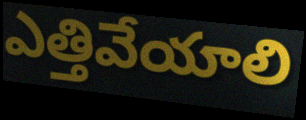
ఎత్తివేయాలి